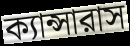
ক্যান্সারাস